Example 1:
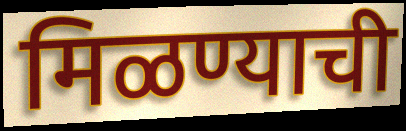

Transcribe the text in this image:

मिळण्याची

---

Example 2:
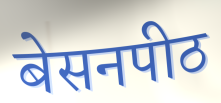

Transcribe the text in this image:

बेसनपीठ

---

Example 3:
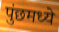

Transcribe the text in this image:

पुंछमध्ये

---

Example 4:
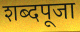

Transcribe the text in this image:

शब्दपूजा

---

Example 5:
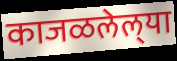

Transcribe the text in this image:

काजळलेल्या